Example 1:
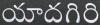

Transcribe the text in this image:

యాదగిరి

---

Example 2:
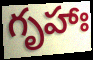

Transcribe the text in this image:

గృహాః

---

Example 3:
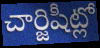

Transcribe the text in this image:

చార్జిషీట్లో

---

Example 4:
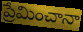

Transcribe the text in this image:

ప్రేమించానా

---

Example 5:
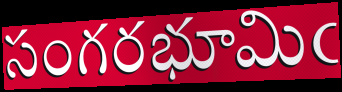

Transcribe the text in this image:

సంగరభూమిఁ